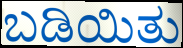
ಬಡಿಯಿತು